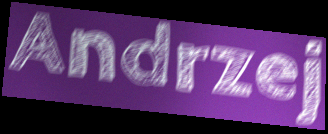
Andrzej